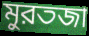
মুরতজা